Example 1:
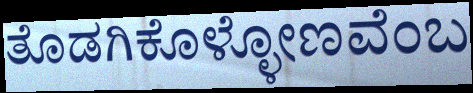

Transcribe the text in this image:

ತೊಡಗಿಕೊಳ್ಳೋಣವೆಂಬ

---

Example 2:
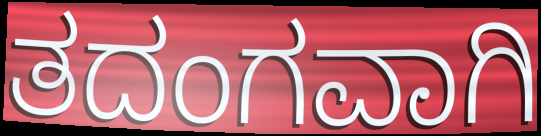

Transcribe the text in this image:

ತದಂಗವಾಗಿ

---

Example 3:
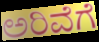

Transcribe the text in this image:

ಅರಿವೆಗೆ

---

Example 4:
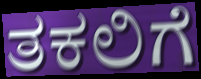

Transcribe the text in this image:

ತಕಲಿಗೆ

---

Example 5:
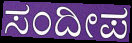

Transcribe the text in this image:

ಸಂದೀಪ